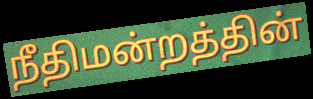
நீதிமன்றத்தின்